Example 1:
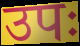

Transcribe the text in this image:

उपः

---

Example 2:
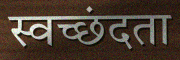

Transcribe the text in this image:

स्वच्छंदता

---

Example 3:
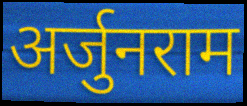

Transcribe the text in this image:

अर्जुनराम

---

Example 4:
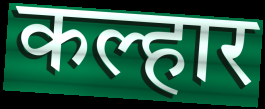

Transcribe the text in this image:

कल्हार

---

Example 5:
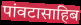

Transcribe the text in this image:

पांवटासाहिब